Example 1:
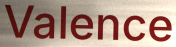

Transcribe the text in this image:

Valence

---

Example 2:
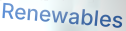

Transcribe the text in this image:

Renewables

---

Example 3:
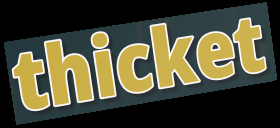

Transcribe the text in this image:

thicket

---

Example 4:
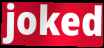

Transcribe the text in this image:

joked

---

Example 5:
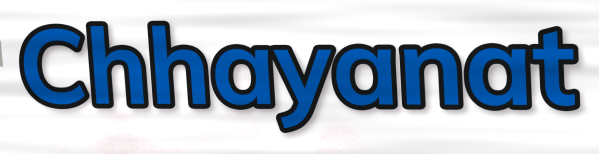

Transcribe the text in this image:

Chhayanat